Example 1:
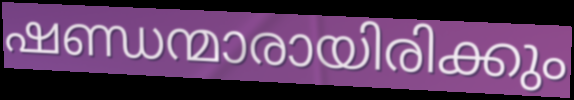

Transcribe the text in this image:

ഷണ്ഡന്മാരായിരിക്കും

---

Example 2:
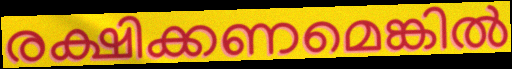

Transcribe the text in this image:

രക്ഷിക്കണമെങ്കിൽ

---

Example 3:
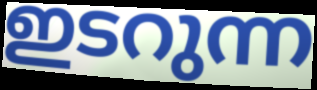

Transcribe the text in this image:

ഇടറുന്ന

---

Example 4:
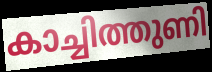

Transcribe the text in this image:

കാച്ചിത്തുണി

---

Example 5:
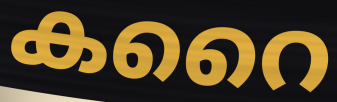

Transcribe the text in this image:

കറൈ